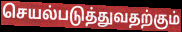
செயல்படுத்துவதற்கும்